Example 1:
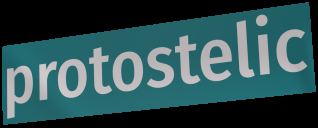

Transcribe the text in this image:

protostelic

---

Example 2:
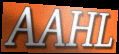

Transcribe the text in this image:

AAHL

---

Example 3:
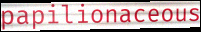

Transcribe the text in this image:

papilionaceous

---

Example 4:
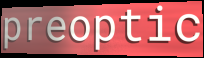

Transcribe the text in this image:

preoptic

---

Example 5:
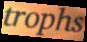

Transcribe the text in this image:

trophs